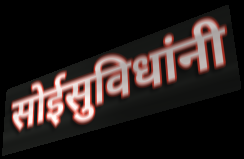
सोईसुविधांनी